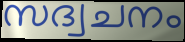
സദ്വചനം